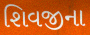
શિવજીના